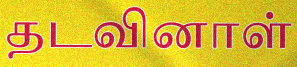
தடவினாள்